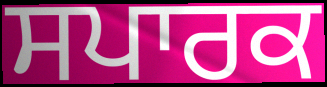
ਸਪਾਰਕ